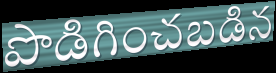
పొడిగించబడిన